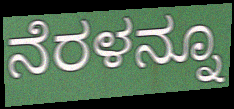
ನೆರಳನ್ನೂ